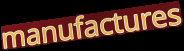
manufactures